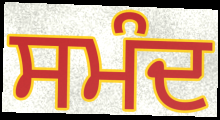
ਸਮੰਦ